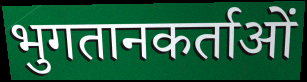
भुगतानकर्ताओं